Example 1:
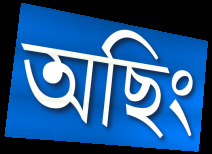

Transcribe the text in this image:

অছিং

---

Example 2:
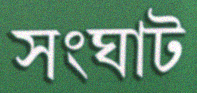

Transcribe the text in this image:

সংঘাট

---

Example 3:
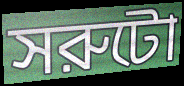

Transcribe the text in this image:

সৰুটো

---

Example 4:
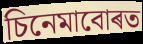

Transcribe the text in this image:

চিনেমাবোৰত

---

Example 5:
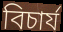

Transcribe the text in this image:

বিচাৰ্য